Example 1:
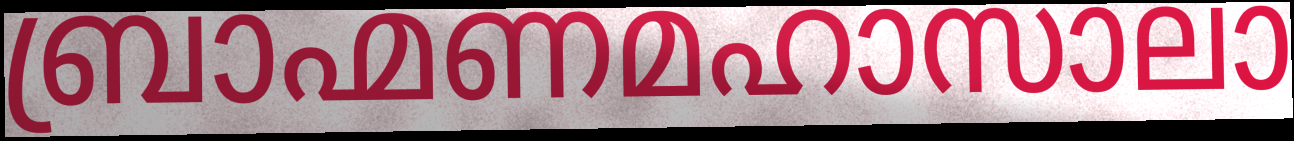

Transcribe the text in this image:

ബ്രാഹ്മണമഹാസാലാ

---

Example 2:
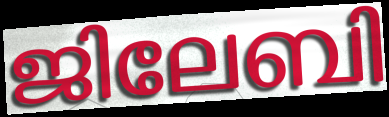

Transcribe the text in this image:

ജിലേബി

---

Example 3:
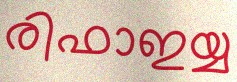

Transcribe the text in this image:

രിഫാഇയ്യ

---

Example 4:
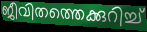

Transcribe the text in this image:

ജീവിതത്തെക്കുറിച്ച്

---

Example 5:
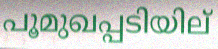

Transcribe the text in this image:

പൂമുഖപ്പടിയില്